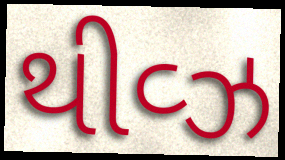
થીવ્ઝ